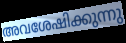
അവശേഷിക്കുന്നു